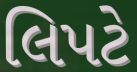
લિપટે